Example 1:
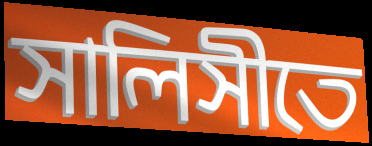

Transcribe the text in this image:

সালিসীতে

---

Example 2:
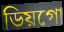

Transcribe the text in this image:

ডিয়গো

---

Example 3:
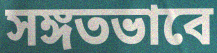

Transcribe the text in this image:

সঙ্গতভাবে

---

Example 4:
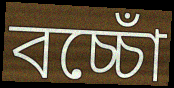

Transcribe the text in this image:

বচ্চোঁ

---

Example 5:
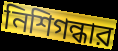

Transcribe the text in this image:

নিশিগন্ধার